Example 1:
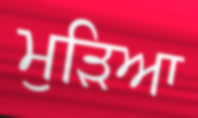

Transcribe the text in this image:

ਮੁੜਿਆ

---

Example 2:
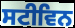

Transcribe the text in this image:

ਸਟੀਵਿਨ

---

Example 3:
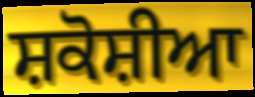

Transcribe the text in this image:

ਸ਼ਕੋਸ਼ੀਆ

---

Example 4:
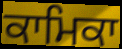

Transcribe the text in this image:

ਕਾਮਿਕਾ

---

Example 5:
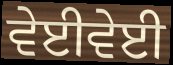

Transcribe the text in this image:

ਵੇਈਵੇਈ